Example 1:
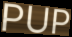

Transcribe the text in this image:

PUP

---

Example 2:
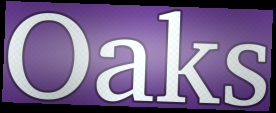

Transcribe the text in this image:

Oaks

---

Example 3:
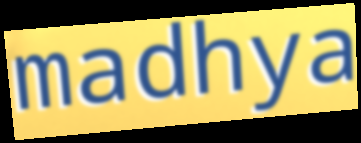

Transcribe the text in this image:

madhya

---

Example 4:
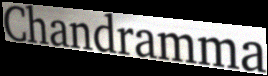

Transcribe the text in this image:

Chandramma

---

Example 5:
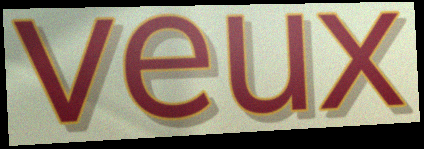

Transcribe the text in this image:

veux